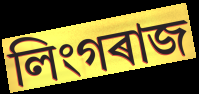
লিংগৰাজ